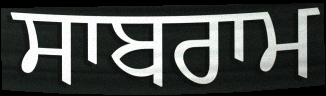
ਸਾਬਰਾਮ